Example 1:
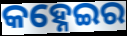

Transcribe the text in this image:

କହ୍ନେଇର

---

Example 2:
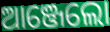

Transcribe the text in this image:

ଆଞ୍ଜେଲୋ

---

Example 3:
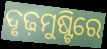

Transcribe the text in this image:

ଦୃଢ଼ମୁଷ୍ଟିରେ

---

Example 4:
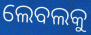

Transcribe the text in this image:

ଲେବଲକୁ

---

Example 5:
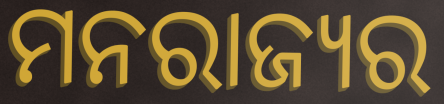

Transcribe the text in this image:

ମନରାଜ୍ୟର